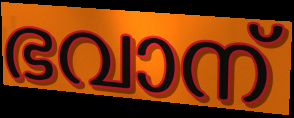
ഭവാന്